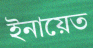
ইনায়েত